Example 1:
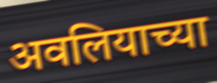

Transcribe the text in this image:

अवलियाच्या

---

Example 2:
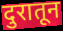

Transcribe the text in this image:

दुरातून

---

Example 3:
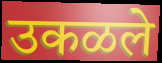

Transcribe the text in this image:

उकळले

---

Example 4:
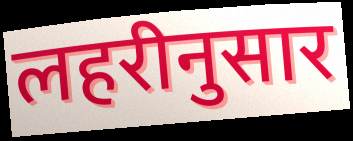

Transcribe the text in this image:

लहरीनुसार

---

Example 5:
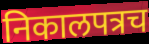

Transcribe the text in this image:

निकालपत्रच